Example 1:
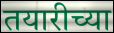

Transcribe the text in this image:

तयारीच्या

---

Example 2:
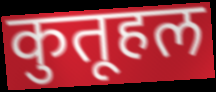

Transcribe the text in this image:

कुतूहल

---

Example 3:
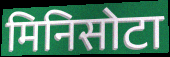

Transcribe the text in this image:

मिनिसोटा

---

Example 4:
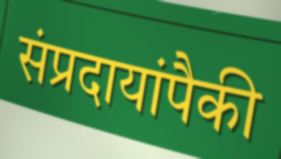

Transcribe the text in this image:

संप्रदायांपैकी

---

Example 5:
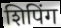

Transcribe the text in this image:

शिपिंग